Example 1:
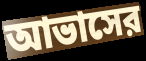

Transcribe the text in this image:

আভাসের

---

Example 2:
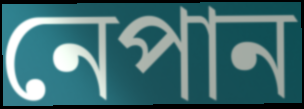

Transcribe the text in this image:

নেপান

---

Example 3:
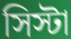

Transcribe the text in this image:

সিস্টা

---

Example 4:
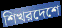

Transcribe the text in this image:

শিখরদেশে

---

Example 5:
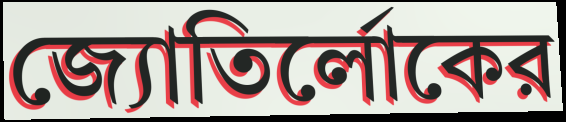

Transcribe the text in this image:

জ্যোতির্লোকের